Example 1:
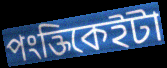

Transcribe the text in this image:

পংক্তিকেইটা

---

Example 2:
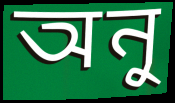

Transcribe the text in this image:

অনু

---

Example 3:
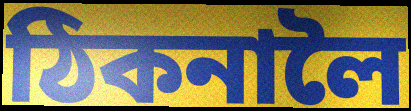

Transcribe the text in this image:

ঠিকনালৈ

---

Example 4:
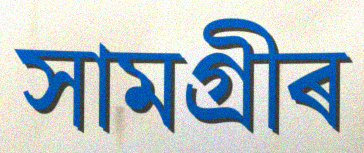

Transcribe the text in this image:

সামগ্ৰীৰ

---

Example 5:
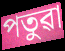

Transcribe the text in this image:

পতুৱা